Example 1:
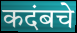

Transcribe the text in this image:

कदंबचे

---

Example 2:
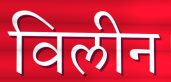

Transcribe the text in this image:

विलीन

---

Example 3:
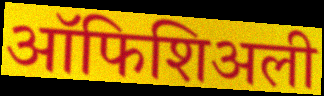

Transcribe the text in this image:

ऑफिशिअली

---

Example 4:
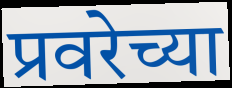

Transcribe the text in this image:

प्रवरेच्या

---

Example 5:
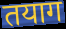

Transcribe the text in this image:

तयाग